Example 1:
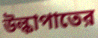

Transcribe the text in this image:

উল্কাপাতের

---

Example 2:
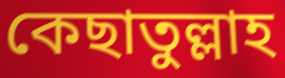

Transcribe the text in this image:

কেছাতুল্লাহ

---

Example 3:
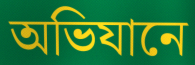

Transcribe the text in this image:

অভিযানে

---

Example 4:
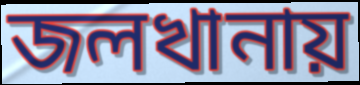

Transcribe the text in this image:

জলখানায়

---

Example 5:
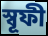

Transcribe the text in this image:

স্বূফী